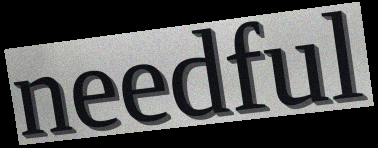
needful